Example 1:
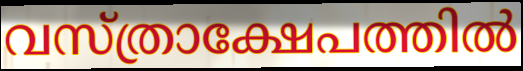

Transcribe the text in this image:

വസ്ത്രാക്ഷേപത്തിൽ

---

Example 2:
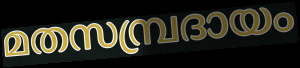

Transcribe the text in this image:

മതസമ്പ്രദായം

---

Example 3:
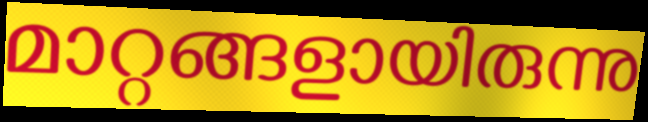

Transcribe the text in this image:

മാറ്റങ്ങളായിരുന്നു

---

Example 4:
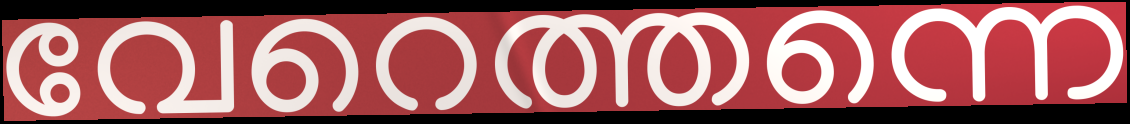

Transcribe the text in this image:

വേറെത്തന്നെ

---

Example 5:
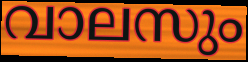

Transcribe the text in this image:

വാലസും